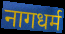
नागधर्म